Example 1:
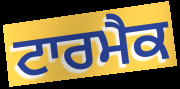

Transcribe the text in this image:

ਟਾਰਮੈਕ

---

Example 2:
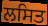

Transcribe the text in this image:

ਲਸਿਤ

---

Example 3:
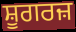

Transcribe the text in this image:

ਸ਼ੂਗਰਜ਼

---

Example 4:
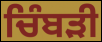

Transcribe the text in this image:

ਚਿੰਬੜੀ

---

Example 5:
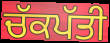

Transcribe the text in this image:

ਚੱਕਪੱਤੀ